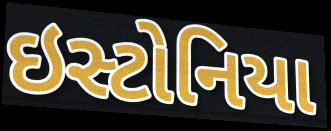
ઇસ્ટોનિયા